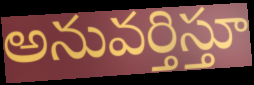
అనువర్తిస్తూ